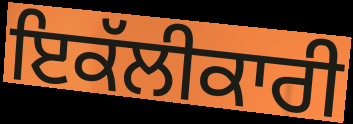
ਇਕੱਲੀਕਾਰੀ